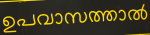
ഉപവാസത്താൽ